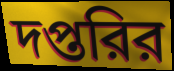
দপ্তরির